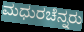
ಮಧುರಚೆನ್ನರು